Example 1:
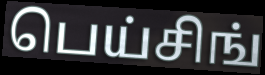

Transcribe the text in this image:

பெய்சிங்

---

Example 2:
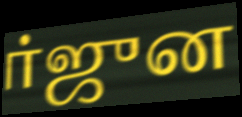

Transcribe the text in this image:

ர்ஜுன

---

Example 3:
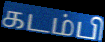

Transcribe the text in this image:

கடம்பி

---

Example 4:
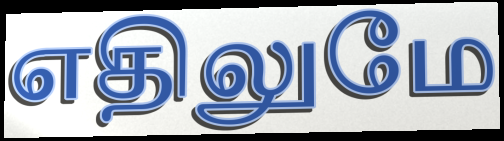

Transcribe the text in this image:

எதிலுமே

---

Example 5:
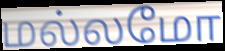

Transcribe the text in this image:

மல்லமோ